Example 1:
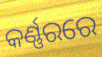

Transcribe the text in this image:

କର୍ଣ୍ଣରରେ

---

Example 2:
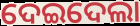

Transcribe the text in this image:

ଦେଇଦେଲା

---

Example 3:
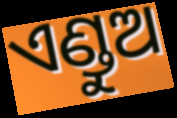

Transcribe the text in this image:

ଏଣ୍ଡୁଅ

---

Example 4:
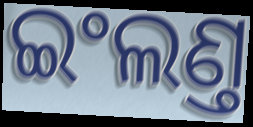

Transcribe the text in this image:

ଇଂଲଣ୍ତ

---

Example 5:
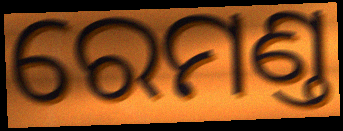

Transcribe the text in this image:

ରେମଣ୍ତ